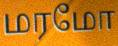
மரமோ